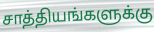
சாத்தியங்களுக்கு